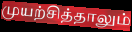
முயற்சித்தாலும்